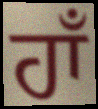
ਹਾਁ